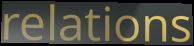
relations